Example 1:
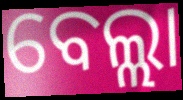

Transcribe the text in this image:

ବେଲ୍ଲା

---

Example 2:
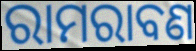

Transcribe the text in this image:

ରାମରାବଣ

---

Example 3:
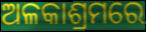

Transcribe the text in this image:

ଅଳକାଶ୍ରମରେ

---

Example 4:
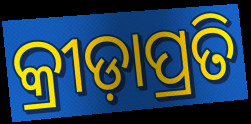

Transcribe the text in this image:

କ୍ରୀଡ଼ାପ୍ରତି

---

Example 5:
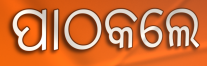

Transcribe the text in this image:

ପାଠକଲେ